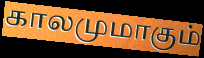
காலமுமாகும்